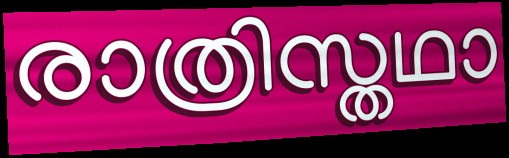
രാത്രിസ്തഥാ